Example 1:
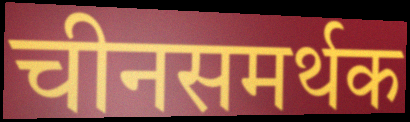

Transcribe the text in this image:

चीनसमर्थक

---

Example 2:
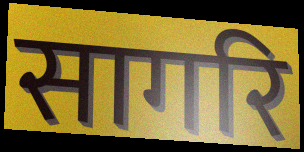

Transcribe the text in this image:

सागरि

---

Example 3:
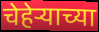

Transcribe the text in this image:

चेहेऱ्याच्या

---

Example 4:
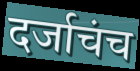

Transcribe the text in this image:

दर्जाचंच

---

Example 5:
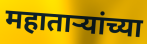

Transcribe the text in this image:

महाताऱ्यांच्या